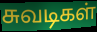
சுவடிகள்